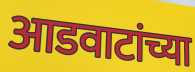
आडवाटांच्या